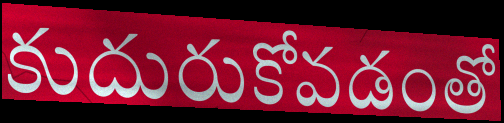
కుదురుకోవడంతో